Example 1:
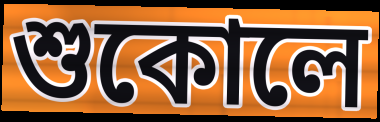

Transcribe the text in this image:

শুকোলে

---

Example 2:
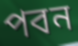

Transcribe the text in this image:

পবন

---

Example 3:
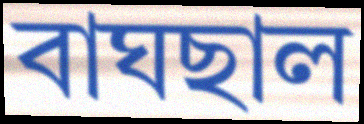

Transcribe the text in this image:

বাঘছাল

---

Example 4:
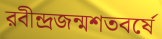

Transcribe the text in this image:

রবীন্দ্রজন্মশতবর্ষে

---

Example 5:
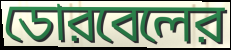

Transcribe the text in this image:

ডোরবেলের